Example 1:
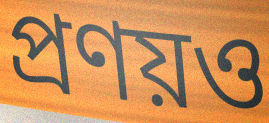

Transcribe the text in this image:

প্রণয়ও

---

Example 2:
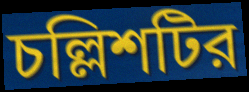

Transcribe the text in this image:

চল্লিশটির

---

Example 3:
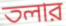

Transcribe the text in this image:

তলার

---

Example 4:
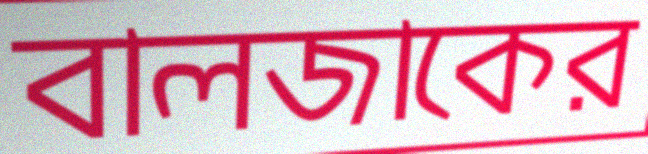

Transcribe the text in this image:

বালজাকের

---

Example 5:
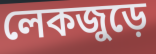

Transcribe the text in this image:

লেকজুড়ে